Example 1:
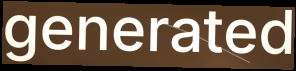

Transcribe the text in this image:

generated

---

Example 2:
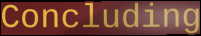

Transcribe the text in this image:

Concluding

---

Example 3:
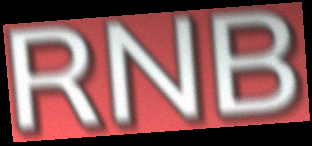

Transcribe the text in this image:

RNB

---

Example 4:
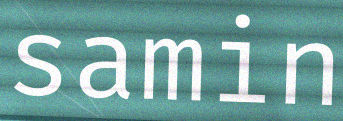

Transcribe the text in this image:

samin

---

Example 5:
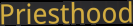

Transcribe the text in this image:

Priesthood